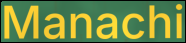
Manachi